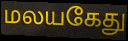
மலயகேது